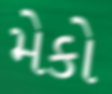
મેકો